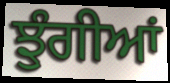
ਝੁੰਗੀਆਂ